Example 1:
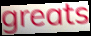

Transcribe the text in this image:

greats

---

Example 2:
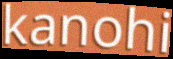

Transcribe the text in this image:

kanohi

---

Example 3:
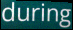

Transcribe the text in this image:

during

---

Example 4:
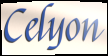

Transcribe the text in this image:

Celyon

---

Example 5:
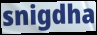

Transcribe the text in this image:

snigdha